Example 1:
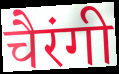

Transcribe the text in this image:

चैरंगी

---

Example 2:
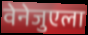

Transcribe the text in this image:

वेनेजुएला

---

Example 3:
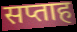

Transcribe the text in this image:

सप्ताह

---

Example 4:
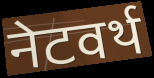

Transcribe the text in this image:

नेटवर्थ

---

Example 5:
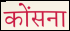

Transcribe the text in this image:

कोंसना